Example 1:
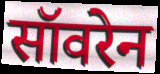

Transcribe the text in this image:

सॉवरेन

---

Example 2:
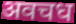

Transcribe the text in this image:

अवचध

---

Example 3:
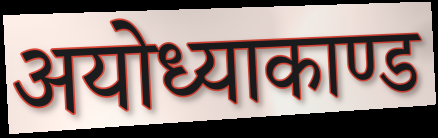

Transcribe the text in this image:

अयोध्याकाण्ड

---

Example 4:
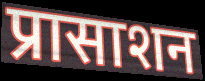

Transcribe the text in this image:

प्रासाशन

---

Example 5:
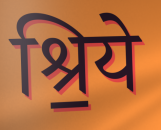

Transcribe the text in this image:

श्रि॒ये